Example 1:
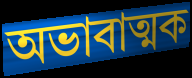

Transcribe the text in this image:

অভাবাত্মক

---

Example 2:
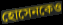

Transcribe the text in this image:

হোসেনকেও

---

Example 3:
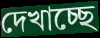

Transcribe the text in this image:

দেখাচ্ছে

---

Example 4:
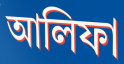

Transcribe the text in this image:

আলিফা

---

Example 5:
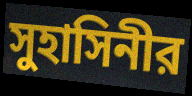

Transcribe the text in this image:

সুহাসিনীর